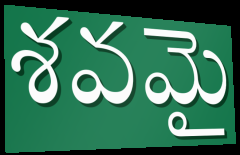
శవమై